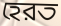
হেরত